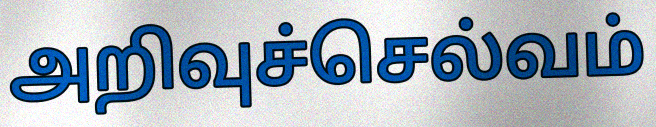
அறிவுச்செல்வம்